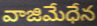
వాజిమేధేన